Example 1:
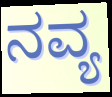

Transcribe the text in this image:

ನವ್ಯ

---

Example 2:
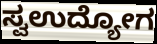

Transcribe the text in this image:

ಸ್ವಉದ್ಯೋಗ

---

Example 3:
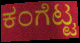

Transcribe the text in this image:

ಕಂಗೆಟ್ಟ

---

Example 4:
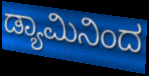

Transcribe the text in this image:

ಡ್ಯಾಮಿನಿಂದ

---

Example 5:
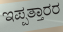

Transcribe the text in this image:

ಇಪ್ಪತ್ತಾರರ